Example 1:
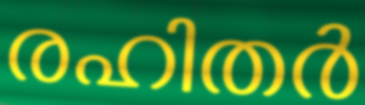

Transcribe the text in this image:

രഹിതർ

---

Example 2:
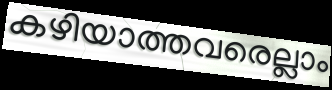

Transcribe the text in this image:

കഴിയാത്തവരെല്ലാം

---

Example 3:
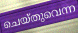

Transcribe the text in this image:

ചെയ്തുവെന്ന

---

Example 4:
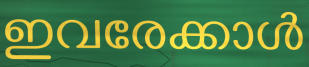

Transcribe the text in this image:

ഇവരേക്കാൾ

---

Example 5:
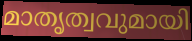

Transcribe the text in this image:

മാതൃത്വവുമായി